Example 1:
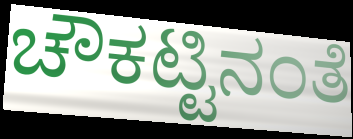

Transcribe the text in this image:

ಚೌಕಟ್ಟಿನಂತೆ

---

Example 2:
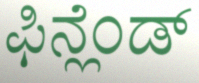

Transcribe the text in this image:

ಫಿನ್ಲೆಂಡ್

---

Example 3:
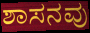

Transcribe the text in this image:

ಶಾಸನವು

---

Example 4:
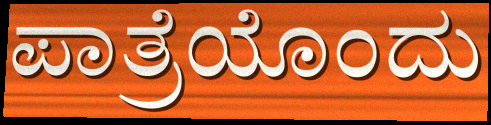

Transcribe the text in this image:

ಪಾತ್ರೆಯೊಂದು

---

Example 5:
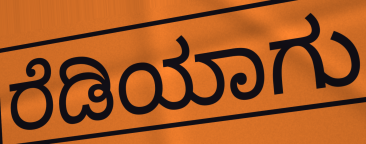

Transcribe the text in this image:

ರೆಡಿಯಾಗು